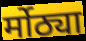
र्मोठ्या